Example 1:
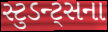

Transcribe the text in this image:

સ્ટુડન્ટ્સના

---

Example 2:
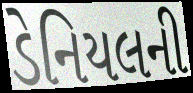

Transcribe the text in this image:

ડેનિયલની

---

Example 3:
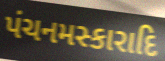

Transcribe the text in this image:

પંચનમસ્કારાદિ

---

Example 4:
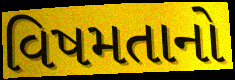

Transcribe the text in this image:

વિષમતાનો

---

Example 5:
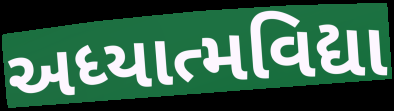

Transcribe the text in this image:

અધ્યાત્મવિદ્યા